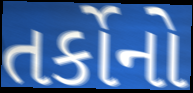
તર્કોનો